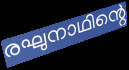
രഘുനാഥിന്റെ